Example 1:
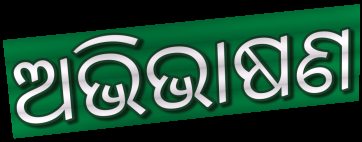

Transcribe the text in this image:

ଅଭିଭାଷଣ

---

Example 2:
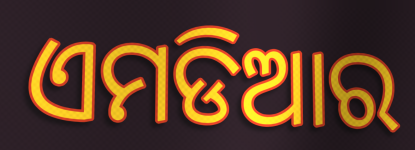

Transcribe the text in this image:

ଏମଡିଆର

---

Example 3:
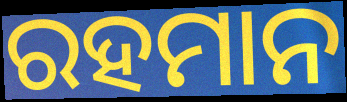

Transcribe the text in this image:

ରହମାନ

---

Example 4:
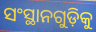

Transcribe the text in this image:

ସଂସ୍ଥାନଗୁଡ଼ିକୁ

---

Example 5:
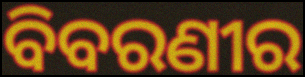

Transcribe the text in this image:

ବିବରଣୀର